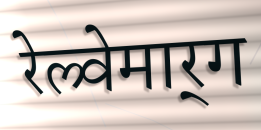
रेल्वेमार्ग